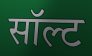
सॉल्‍ट